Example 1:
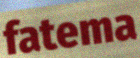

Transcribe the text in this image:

fatema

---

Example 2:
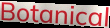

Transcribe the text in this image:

Botanical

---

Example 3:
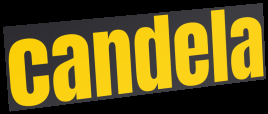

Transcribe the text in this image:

candela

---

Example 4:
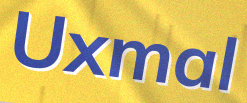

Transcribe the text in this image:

Uxmal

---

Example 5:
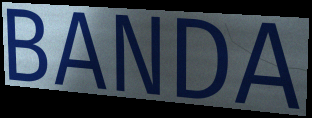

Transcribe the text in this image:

BANDA